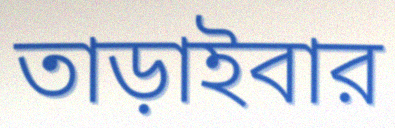
তাড়াইবার